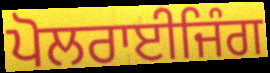
ਪੋਲਰਾਈਜਿੰਗ